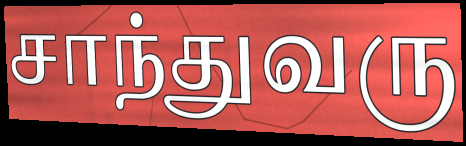
சாந்துவரு